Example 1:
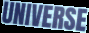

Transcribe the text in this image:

UNIVERSE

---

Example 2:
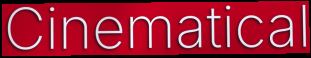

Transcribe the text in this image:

Cinematical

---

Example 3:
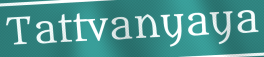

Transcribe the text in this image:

Tattvanyaya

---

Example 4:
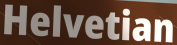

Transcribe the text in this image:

Helvetian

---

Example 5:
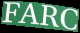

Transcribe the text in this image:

FARC